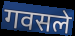
गवसले